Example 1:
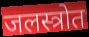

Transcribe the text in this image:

जलस्त्रोत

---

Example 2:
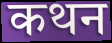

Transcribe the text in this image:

कथन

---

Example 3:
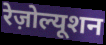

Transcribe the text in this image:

रेज़ोल्यूशन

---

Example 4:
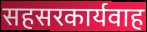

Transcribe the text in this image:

सहसरकार्यवाह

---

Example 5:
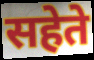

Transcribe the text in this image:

सहेते